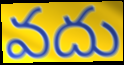
వదు